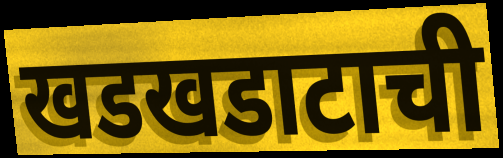
खडखडाटाची